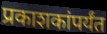
प्रकाशकांपर्यंत